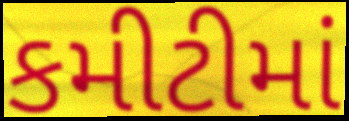
કમીટીમાં